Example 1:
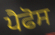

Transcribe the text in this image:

ਪੈਫੋਸ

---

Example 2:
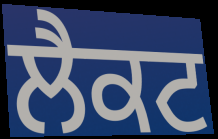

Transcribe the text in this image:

ਲੈਕਟ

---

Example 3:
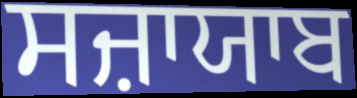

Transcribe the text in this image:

ਸਜ਼ਾਯਾਬ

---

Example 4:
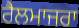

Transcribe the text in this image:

ਰੈਲਮਾਜਰਾ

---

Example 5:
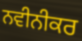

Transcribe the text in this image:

ਨਵੀਨੀਕਰ